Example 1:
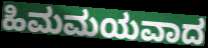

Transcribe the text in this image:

ಹಿಮಮಯವಾದ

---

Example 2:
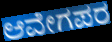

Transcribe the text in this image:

ಆವೇಗಪರ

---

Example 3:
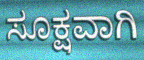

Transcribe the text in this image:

ಸೂಕ್ಷವಾಗಿ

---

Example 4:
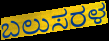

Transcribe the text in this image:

ಬಲುಸರಳ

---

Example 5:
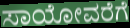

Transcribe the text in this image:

ಸಾಯೋವರೆಗೆ